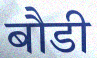
बौडी